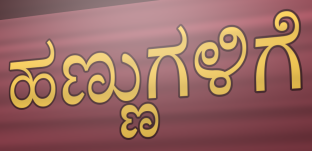
ಹಣ್ಣುಗಳಿಗೆ